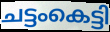
ചട്ടംകെട്ടി